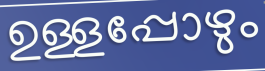
ഉള്ളപ്പോഴും